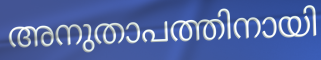
അനുതാപത്തിനായി